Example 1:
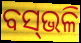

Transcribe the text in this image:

ବସ୍‌ଭଳି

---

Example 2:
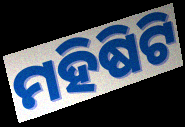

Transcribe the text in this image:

ମହିଷିଟି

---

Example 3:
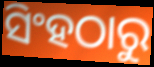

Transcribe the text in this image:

ସିଂହଠାରୁ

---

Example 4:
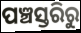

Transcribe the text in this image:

ପଞ୍ଚସ୍ତରିରୁ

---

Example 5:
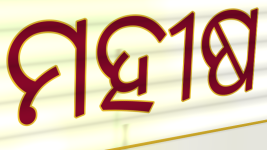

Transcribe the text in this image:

ମହୀଷ